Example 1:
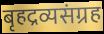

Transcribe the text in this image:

बृहद्रव्यसंग्रह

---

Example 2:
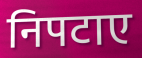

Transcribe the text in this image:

निपटाए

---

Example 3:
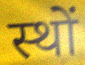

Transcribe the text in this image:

स्थों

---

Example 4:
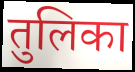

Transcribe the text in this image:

तुलिका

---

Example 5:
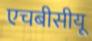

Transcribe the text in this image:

एचबीसीयू